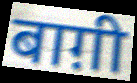
बाग़ी